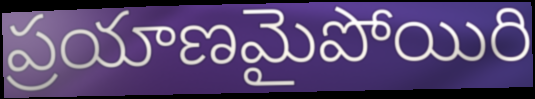
ప్రయాణమైపోయిరి